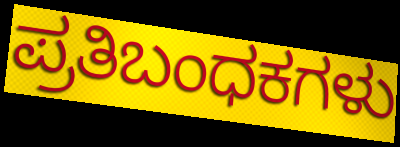
ಪ್ರತಿಬಂಧಕಗಳು